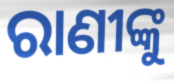
ରାଣୀଙ୍କୁ